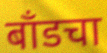
बाँडचा